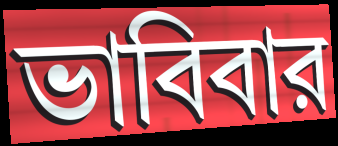
ভাবিবার